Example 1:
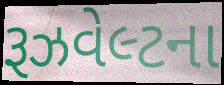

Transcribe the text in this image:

રૂઝવેલ્ટના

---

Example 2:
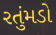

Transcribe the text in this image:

રતુંમડો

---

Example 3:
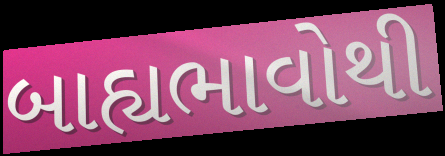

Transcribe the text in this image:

બાહ્યભાવોથી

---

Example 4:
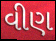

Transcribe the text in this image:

વીણ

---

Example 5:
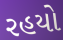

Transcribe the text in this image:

રહયો